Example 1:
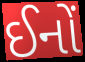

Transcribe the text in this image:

ઈનોં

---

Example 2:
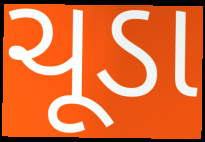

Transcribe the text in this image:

ચૂડા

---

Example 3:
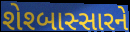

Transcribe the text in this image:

શેશ્બાસ્સારને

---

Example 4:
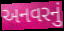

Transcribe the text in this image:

અનવરનું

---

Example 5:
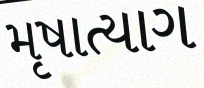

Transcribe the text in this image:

મૃષાત્યાગ